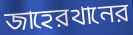
জাহেরথানের